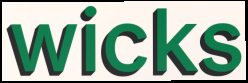
wicks